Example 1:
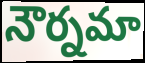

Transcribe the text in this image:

నౌర్నమా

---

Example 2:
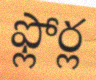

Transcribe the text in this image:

ఫ్లోర్ల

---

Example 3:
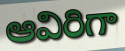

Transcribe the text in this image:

ఆవిరిగా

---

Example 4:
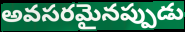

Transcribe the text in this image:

అవసరమైనప్పుడు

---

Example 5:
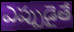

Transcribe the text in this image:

ఎప్పుడైతే